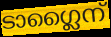
ടാഗ്ലൈന്